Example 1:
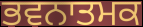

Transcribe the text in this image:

ਭਵਨਾਤਮਕ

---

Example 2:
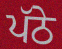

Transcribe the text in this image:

ਪੱਠੇ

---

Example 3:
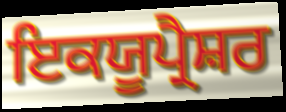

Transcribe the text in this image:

ਇਕਯੂਪ੍ਰੈਸ਼ਰ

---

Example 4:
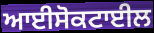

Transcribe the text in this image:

ਆਈਸੋਕਟਾਈਲ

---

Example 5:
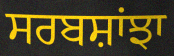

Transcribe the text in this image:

ਸਰਬਸ਼ਾਂਝਾ